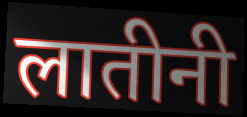
लातीनी